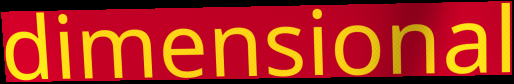
dimensional